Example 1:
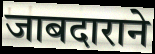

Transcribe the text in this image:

जाबदाराने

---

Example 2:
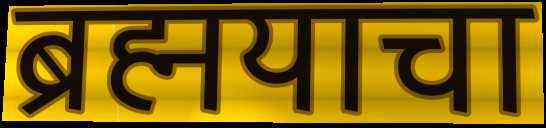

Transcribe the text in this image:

ब्रह्मयाचा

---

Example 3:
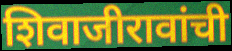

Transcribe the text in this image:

शिवाजीरावांची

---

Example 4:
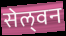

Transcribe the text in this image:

सेल्वन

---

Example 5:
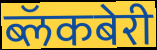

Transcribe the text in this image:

ब्लॅकबेरी